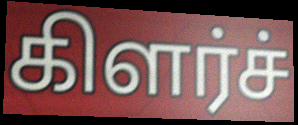
கிளர்ச்